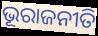
ଭୂରାଜନୀତି